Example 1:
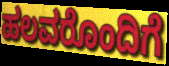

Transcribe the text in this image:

ಹಲವರೊಂದಿಗೆ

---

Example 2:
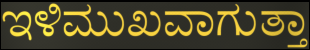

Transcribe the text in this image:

ಇಳಿಮುಖವಾಗುತ್ತಾ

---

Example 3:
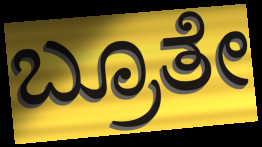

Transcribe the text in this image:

ಬ್ರೂತೇ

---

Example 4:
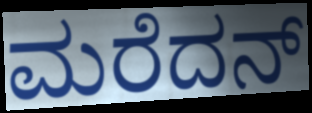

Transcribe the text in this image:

ಮರೆದನ್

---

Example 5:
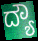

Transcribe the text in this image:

ದ್ಯೌ